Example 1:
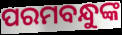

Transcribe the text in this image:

ପରମବନ୍ଧୁଙ୍କ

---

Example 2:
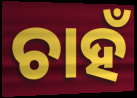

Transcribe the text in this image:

ଚାହଁ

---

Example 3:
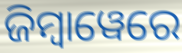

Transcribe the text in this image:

ଜିମ୍ୱାୱେରେ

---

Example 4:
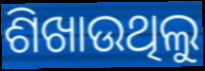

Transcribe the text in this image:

ଶିଖାଉଥିଲୁ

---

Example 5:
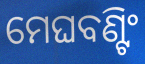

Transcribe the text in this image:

ମେଘବଣ୍ଟିଂ